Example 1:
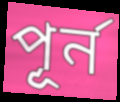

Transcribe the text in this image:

পূর্ন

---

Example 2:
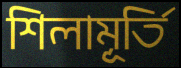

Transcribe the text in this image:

শিলামূর্তি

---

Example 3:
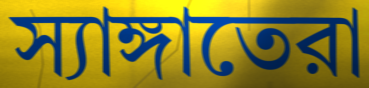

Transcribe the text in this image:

স্যাঙ্গাতেরা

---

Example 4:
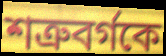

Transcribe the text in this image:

শত্রুবর্গকে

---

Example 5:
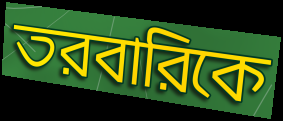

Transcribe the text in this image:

তরবারিকে